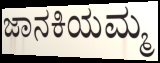
ಜಾನಕಿಯಮ್ಮ